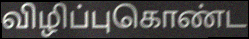
விழிப்புகொண்ட